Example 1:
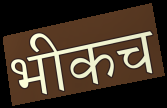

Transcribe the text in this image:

भीकच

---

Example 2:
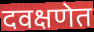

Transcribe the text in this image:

दवक्षणेत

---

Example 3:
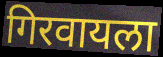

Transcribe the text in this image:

गिरवायला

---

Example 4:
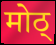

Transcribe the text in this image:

मोठ्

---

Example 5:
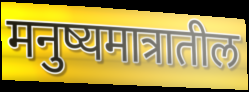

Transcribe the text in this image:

मनुष्यमात्रातील